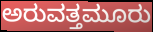
ಅರುವತ್ತಮೂರು